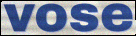
vose